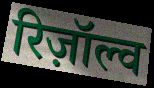
रिज़ॉल्व